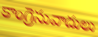
కాంగ్రెసువాదులు